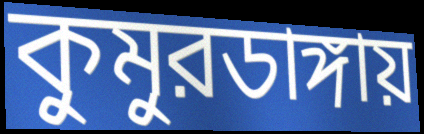
কুমুরডাঙ্গায়